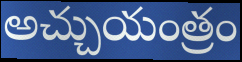
అచ్చుయంత్రం